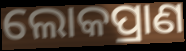
ଲୋକପ୍ରାଣ